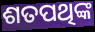
ଶତପଥିଙ୍କ